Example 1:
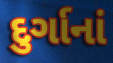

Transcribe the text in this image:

દુર્ગાનાં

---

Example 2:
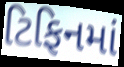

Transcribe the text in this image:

ટિફિનમાં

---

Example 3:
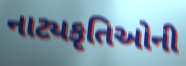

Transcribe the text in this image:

નાટ્યકૃતિઓની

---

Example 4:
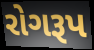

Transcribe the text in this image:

રોગરૂપ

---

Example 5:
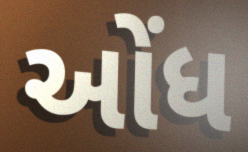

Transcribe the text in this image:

ઓંધ